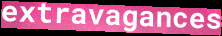
extravagances